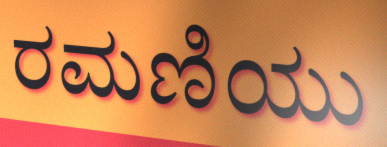
ರಮಣಿಯು